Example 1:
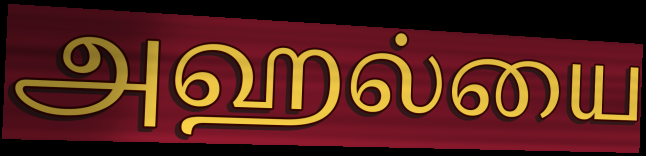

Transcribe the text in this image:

அஹல்யை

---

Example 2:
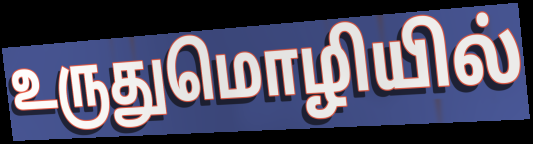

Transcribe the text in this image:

உருதுமொழியில்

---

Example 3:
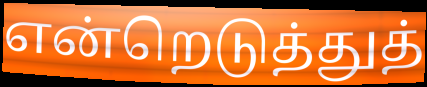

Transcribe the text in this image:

என்றெடுத்துத்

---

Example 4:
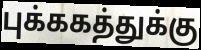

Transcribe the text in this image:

புக்ககத்துக்கு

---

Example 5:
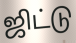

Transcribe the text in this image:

ஜிட்டு